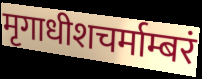
मृगाधीशचर्माम्बरं